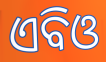
ଏବିଓ